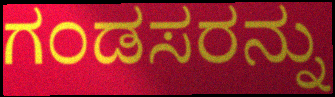
ಗಂಡಸರನ್ನು